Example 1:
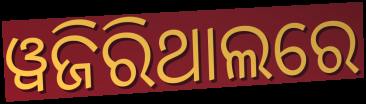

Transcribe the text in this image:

ୱଜିରିଥାଲରେ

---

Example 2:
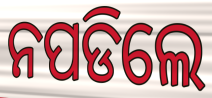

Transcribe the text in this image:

ନପଡିଲେ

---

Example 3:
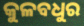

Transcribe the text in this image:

କୁଳବଧୁର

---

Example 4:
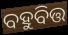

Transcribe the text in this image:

ବହୁବିତ୍ତ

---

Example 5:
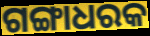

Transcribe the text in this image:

ଗଙ୍ଗାଧରକ